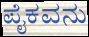
ಪೈಕವನು